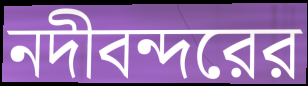
নদীবন্দরের